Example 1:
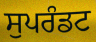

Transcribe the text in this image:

ਸੁਪਰੰਡਟ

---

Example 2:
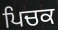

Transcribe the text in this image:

ਪਿਚਕ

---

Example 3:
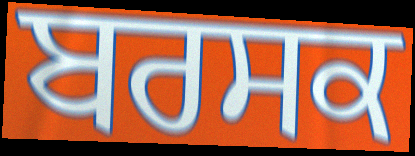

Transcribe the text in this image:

ਬਰਸਕ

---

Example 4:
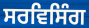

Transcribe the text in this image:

ਸਰਵਿਸਿੰਗ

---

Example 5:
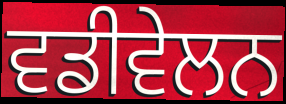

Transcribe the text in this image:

ਵਡੀਵੇਲਨ